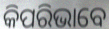
କିପରିଭାବେ